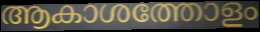
ആകാശത്തോളം